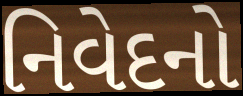
નિવેદનો